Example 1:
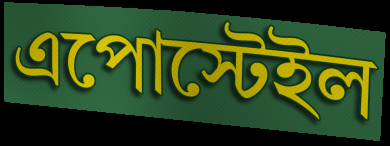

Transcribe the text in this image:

এপোস্টেইল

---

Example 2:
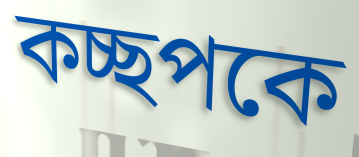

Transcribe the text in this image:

কচ্ছপকে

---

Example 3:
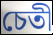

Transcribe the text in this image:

চেতী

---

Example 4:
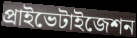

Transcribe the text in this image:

প্রাইভেটাইজেশন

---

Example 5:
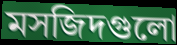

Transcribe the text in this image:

মসজিদগুলো